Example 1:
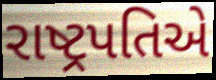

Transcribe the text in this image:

રાષ્ટ્રપતિએ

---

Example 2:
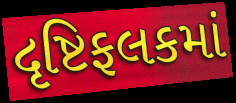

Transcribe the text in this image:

દૃષ્ટિફલકમાં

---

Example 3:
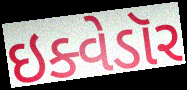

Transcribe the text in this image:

ઇક્વેડૉર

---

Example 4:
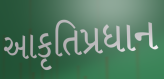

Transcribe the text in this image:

આકૃતિપ્રધાન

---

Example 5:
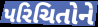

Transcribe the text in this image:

પરિચિતોને